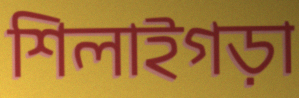
শিলাইগড়া